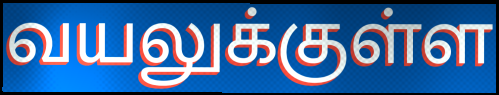
வயலுக்குள்ள